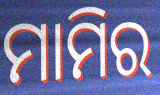
ମାମିର